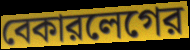
বেকারলেগের